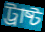
ট্ৰাষ্ট